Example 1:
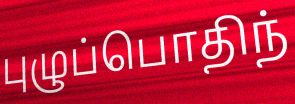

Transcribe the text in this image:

புழுப்பொதிந்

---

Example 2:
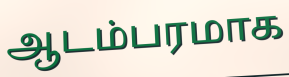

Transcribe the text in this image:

ஆடம்பரமாக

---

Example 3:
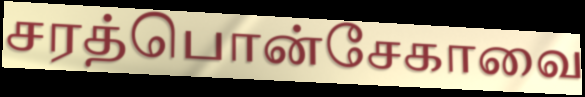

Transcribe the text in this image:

சரத்பொன்சேகாவை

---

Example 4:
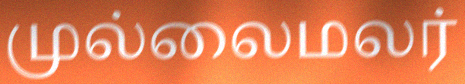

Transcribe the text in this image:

முல்லைமலர்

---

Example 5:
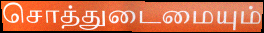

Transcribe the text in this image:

சொத்துடைமையும்